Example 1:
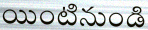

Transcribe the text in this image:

యింటినుండి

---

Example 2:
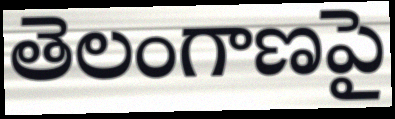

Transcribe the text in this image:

తెలంగాణపై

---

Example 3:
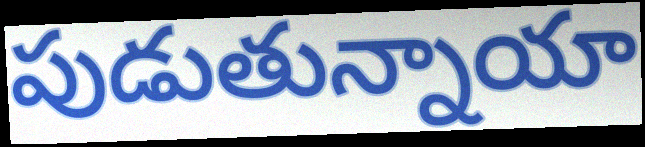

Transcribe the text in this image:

పుడుతున్నాయా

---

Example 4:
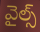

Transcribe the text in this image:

వైల్స్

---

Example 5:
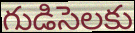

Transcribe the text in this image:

గుడిసెలకు